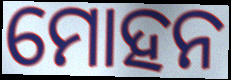
ମୋହନ